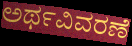
ಅರ್ಥವಿವರಣೆ